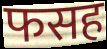
फसह